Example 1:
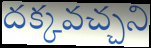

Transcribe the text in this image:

దక్కవచ్చని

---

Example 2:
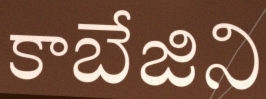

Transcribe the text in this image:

కాబేజిని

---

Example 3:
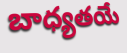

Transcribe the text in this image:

బాధ్యతయే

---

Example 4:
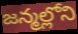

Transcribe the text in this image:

జన్మల్లోని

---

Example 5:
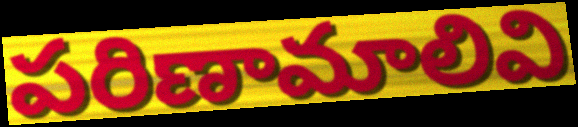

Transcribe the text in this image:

పరిణామాలివి